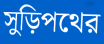
সুড়িপথের